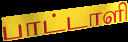
பாட்டாளி